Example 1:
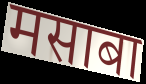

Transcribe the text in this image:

मसाबा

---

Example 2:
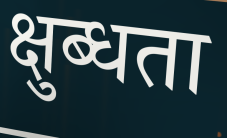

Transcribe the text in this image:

क्षुब्धता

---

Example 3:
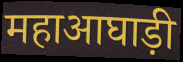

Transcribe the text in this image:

महाआघाड़ी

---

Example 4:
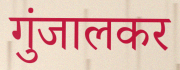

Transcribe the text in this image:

गुंजालकर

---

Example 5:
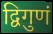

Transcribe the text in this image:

द्विगुणं